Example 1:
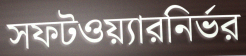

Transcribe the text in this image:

সফটওয়্যারনির্ভর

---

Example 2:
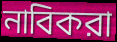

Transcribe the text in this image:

নাবিকরা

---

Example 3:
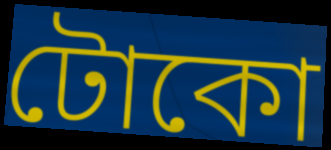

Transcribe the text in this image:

টোকো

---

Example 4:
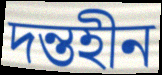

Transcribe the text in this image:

দন্তহীন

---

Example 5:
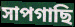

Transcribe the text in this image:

সাপগাছি